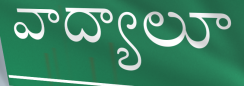
వాద్యాలూ